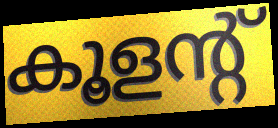
കൂളന്റ്